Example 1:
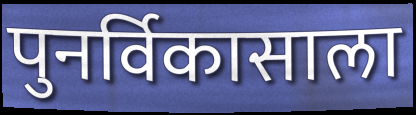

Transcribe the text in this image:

पुनर्विकासाला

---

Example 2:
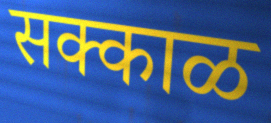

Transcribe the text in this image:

सक्काळ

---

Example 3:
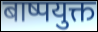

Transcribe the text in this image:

बाष्पयुक्त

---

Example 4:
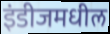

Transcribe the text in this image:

इंडीजमधील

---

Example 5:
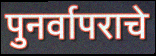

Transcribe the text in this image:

पुनर्वापराचे